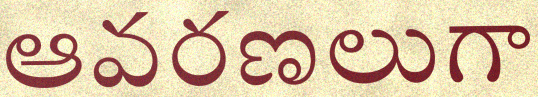
ఆవరణలుగా